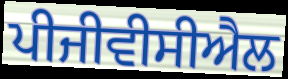
ਪੀਜੀਵੀਸੀਐਲ